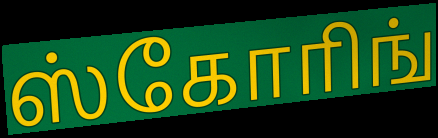
ஸ்கோரிங்